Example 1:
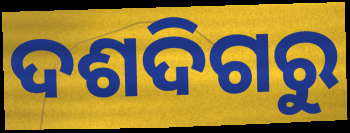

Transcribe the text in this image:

ଦଶଦିଗରୁ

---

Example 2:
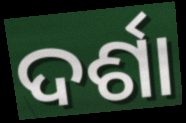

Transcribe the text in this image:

ଦର୍ଶା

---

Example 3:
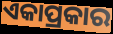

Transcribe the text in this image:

ଏକାପ୍ରକାର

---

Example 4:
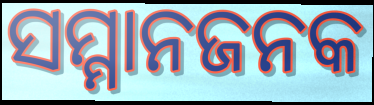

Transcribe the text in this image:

ସମ୍ମାନଜନକ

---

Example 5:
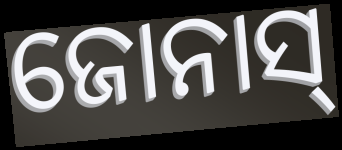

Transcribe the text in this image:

ଜୋନାସ୍